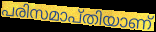
പരിസമാപ്തിയാണ്